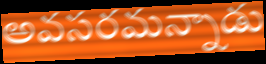
అవసరమన్నాడు